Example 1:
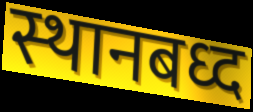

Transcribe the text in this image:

स्थानबध्द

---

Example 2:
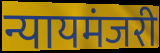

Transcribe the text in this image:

न्यायमंजरी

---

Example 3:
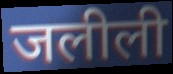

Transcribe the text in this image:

जलीली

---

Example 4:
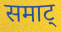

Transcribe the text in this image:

समाट्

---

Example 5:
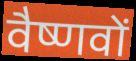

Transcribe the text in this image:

वैष्णवों